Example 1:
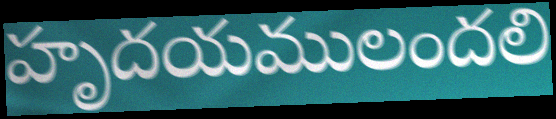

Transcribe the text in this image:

హృదయములందలి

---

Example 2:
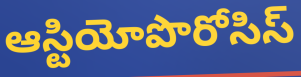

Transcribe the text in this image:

ఆస్టియోపొరోసిస్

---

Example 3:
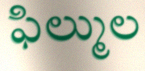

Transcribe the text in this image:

ఫిల్ముల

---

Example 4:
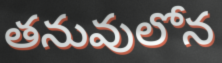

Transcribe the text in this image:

తనువులోన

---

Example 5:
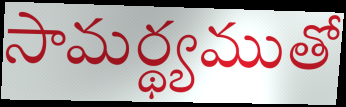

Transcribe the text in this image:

సామర్థ్యముతో